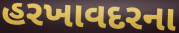
હરખાવદરના